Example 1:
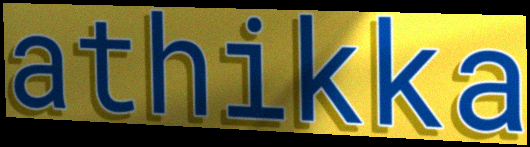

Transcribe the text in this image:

athikka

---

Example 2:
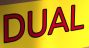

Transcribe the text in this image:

DUAL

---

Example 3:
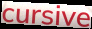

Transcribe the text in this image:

cursive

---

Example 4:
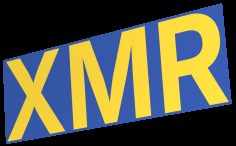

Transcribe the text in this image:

XMR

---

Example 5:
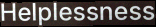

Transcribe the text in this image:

Helplessness